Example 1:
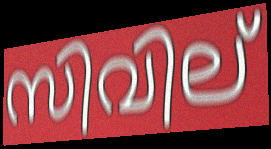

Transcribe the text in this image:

സിവില്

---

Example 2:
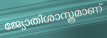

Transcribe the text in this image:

ജ്യോതിശാസ്ത്രമാണ്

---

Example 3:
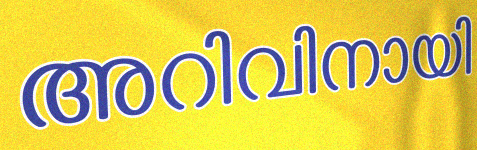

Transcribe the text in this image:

അറിവിനായി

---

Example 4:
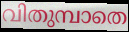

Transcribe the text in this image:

വിതുമ്പാതെ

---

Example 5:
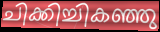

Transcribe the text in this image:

ചിക്കിച്ചികഞ്ഞു